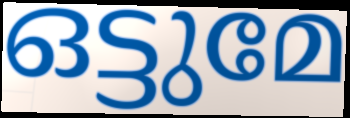
ഒട്ടുമേ